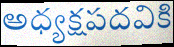
అధ్యక్షపదవికి